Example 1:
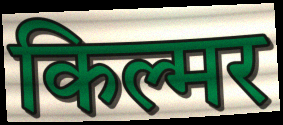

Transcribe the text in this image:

किल्मर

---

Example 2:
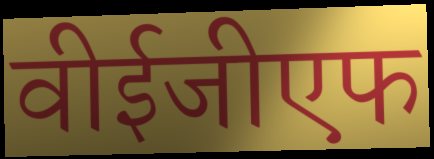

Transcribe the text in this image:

वीईजीएफ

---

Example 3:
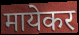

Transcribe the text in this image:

मायेकर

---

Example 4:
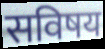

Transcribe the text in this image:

सविषय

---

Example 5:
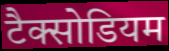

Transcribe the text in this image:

टैक्सोडियम